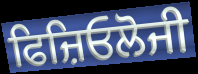
ਫਿਜ਼ਿਓਲੋਜੀ